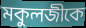
মকুলজীকে